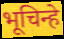
भूचिन्हे